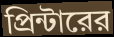
প্রিন্টারের